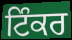
ਟਿੰਕਰ